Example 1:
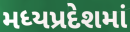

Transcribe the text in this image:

મધ્યપ્રદેશમાં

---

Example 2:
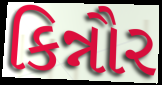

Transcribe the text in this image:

કિન્નૌર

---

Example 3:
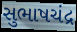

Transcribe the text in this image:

સુભાષચંદ્ર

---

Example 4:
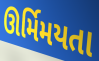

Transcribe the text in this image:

ઊર્મિમયતા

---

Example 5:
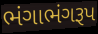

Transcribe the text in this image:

ભંગાભંગરૂપ